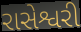
રાસેશ્વરી